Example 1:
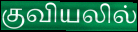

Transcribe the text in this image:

குவியலில்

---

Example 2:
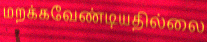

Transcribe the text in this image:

மறக்கவேண்டியதில்லை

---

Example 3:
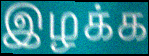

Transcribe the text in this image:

இழக்க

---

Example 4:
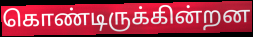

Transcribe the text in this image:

கொண்டிருக்கின்றன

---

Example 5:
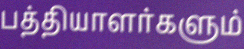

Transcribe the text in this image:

பத்தியாளர்களும்